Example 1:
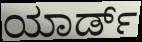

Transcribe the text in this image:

ಯಾರ್ಡ್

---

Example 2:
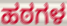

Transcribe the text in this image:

ಹಠಗಳ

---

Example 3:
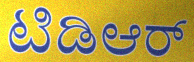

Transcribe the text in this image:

ಟಿಡಿಆರ್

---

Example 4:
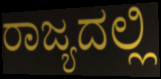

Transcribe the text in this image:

ರಾಜ್ಯದಲ್ಲಿ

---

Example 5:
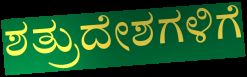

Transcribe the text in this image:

ಶತ್ರುದೇಶಗಳಿಗೆ